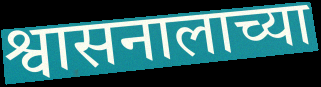
श्वासनालाच्या